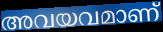
അവയവമാണ്